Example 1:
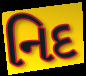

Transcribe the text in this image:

નિદ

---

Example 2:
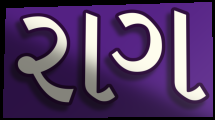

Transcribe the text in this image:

રાગ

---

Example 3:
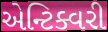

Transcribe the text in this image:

એન્ટિક્વરી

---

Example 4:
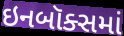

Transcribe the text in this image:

ઇનબૉક્સમાં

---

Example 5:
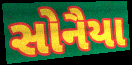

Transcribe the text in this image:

સોનૈયા